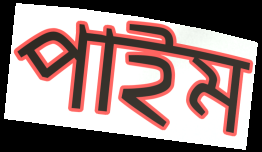
পাইম